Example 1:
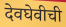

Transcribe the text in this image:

देवघेवीची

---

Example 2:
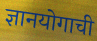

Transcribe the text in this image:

ज्ञानयोगाची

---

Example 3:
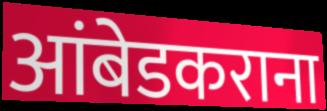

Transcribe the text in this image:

आंबेडकराना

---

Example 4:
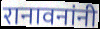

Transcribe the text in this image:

रानावनांनी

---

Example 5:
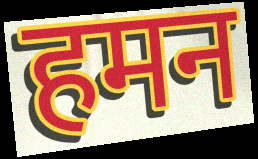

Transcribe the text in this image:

हमन